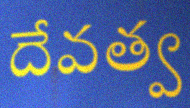
దేవత్వ